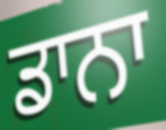
ਡਾਨਾ